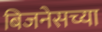
बिजनेसच्या